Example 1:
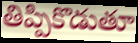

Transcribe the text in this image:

తిప్పికొడుతూ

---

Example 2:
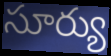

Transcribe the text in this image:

సూర్యు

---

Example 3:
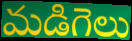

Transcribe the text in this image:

మడిగెలు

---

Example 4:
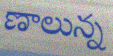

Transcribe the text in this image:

ణాలున్న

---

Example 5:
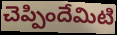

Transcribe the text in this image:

చెప్పిందేమిటి